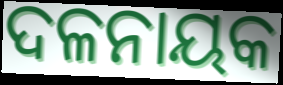
ଦଳନାୟକ